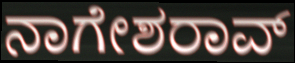
ನಾಗೇಶರಾವ್